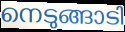
നെടുങ്ങാടി